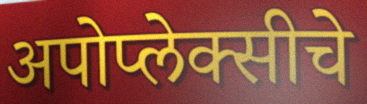
अपोप्लेक्सीचे